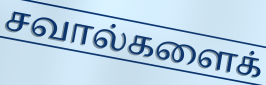
சவால்களைக்